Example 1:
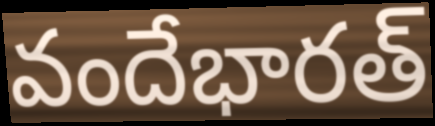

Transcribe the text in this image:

వందేభారత్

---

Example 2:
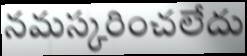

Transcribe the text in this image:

నమస్కరించలేదు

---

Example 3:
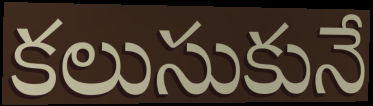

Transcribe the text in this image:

కలుసుకునే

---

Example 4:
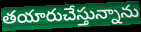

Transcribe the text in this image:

తయారుచేస్తున్నాను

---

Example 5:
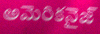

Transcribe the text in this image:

అమెరికనైజ్